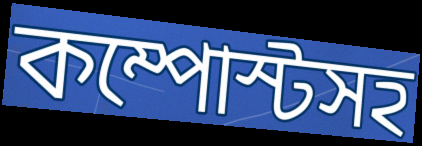
কম্পোস্টসহ